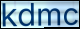
kdmc